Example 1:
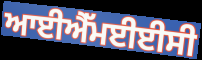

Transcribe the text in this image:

ਆਈਐੱਮਈਈਸੀ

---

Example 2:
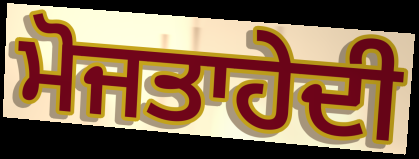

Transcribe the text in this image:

ਮੋਜਤਾਹੇਦੀ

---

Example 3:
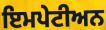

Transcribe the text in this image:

ਇਮਪੇਟੀਅਨ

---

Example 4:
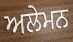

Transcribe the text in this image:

ਅਲੇਮਨ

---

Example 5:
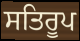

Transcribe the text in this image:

ਸਤਿਰੂਪ